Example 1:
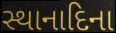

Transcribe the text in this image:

સ્થાનાદિના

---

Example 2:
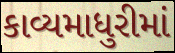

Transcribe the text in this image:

કાવ્યમાધુરીમાં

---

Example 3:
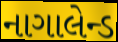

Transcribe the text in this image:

નાગાલેન્ડ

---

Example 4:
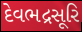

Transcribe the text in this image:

દેવભદ્રસૂરિ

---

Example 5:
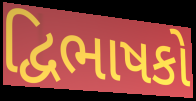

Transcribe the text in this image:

દ્વિભાષકો